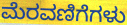
ಮೆರವಣಿಗೆಗಳು